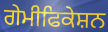
ਗੇਮੀਫਿਕੇਸ਼ਨ